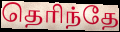
தெரிந்தே